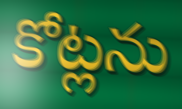
కోట్లను